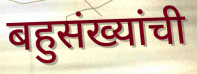
बहुसंख्यांची